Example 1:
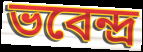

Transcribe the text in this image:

ভবেন্দ্ৰ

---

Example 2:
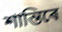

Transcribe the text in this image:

শান্তিৰে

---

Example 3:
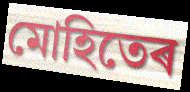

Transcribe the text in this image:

মোহিতেৰ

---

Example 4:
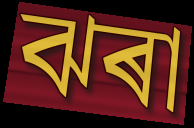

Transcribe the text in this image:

ঝৰা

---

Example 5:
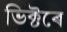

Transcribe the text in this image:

ভিক্টৰে